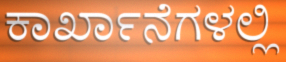
ಕಾರ್ಖಾನೆಗಳಲ್ಲಿ